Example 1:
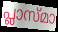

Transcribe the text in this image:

പ്ലാസ്മാ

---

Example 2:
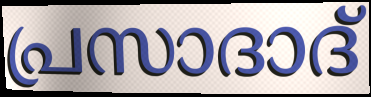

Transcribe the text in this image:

പ്രസാദാദ്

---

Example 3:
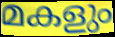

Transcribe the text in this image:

മകളും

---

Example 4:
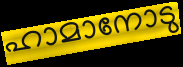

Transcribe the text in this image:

ഹാമാനോടു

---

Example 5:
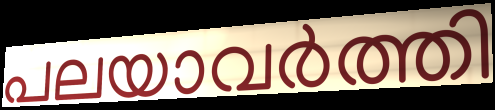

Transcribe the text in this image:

പലയാവർത്തി